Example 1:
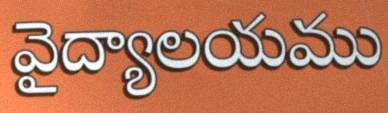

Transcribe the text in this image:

వైద్యాలయము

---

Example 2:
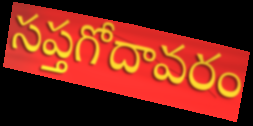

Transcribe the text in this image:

సప్తగోదావరం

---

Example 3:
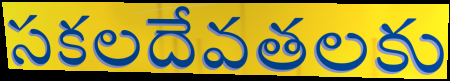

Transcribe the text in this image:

సకలదేవతలకు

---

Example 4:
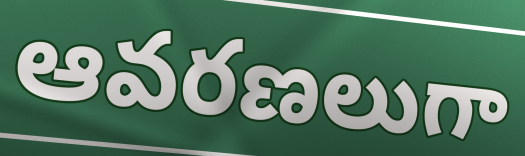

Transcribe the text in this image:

ఆవరణలుగా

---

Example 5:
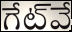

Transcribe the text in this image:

గేట్‌వే